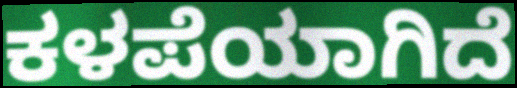
ಕಳಪೆಯಾಗಿದೆ